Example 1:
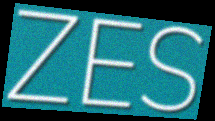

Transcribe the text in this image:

ZES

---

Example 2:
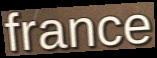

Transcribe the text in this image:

france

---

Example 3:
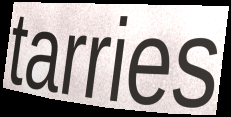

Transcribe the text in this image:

tarries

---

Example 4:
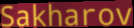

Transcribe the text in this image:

Sakharov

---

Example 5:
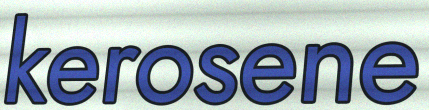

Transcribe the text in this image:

kerosene